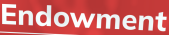
Endowment